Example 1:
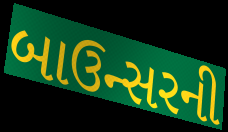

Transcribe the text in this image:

બાઉન્સરની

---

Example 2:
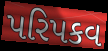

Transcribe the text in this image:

પરિપકવ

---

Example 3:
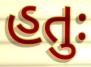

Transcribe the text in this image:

હતુઃ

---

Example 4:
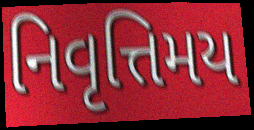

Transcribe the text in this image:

નિવૃત્તિમય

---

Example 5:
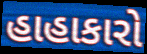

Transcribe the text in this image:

હાહાકારો